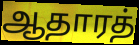
ஆதாரத்